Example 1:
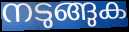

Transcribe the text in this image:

നടുങ്ങുക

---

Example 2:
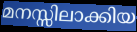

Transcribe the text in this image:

മനസ്സിലാക്കിയ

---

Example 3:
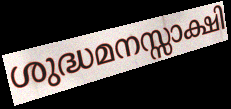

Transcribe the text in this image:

ശുദ്ധമനസ്സാക്ഷി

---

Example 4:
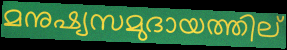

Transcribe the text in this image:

മനുഷ്യസമുദായത്തില്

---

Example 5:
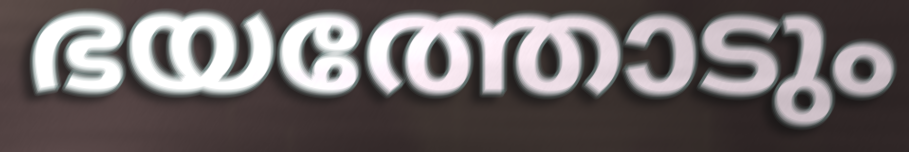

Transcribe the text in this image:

ഭയത്തോടും